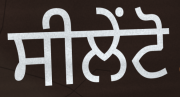
ਸੀਲੇਂਟੋ